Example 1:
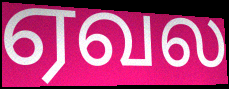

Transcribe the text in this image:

ஏவல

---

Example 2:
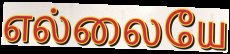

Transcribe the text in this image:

எல்லையே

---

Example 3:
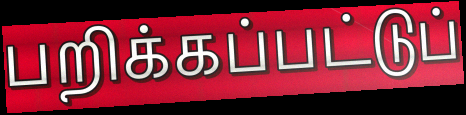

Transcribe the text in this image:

பறிக்கப்பட்டுப்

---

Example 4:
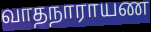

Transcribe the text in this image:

வாதநாராயண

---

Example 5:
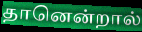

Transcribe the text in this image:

தானென்றால்